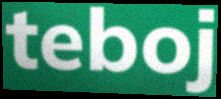
teboj